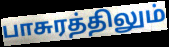
பாசுரத்திலும்